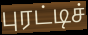
புரட்டிச்